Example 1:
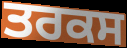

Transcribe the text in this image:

ਤਰਕਸ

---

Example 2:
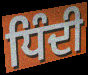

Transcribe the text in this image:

ਧਿੰਦੀ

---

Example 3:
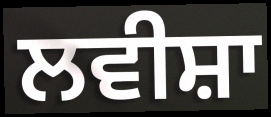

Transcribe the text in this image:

ਲਵੀਸ਼ਾ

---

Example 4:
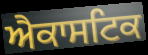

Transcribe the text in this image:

ਐਕਾਸਟਿਕ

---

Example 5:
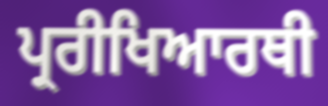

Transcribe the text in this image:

ਪ੍ਰਰੀਖਿਆਰਥੀ